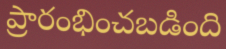
ప్రారంభించబడింది